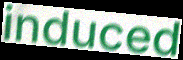
induced